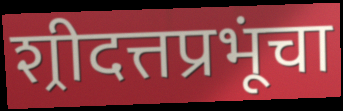
श्रीदत्तप्रभूंचा